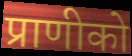
प्राणीको